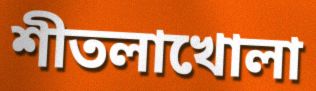
শীতলাখোলা